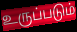
உருப்படும்